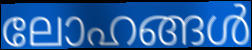
ലോഹങ്ങൾ